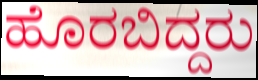
ಹೊರಬಿದ್ದರು